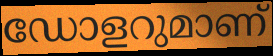
ഡോളറുമാണ്